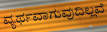
ವ್ಯರ್ಥವಾಗುವುದಿಲ್ಲವೆ